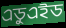
এডুএইড